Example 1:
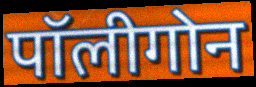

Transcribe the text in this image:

पॉलीगोन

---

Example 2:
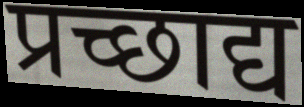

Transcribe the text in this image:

प्रच्छाद्य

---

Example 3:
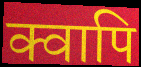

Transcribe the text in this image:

क्वापि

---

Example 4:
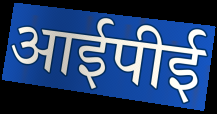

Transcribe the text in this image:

आईपीई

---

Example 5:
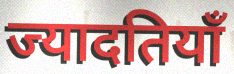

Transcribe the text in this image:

ज्यादतियाँ